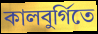
কালবুর্গিতে